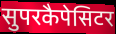
सुपरकैपेसिटर